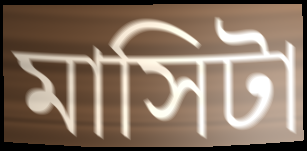
মাসিটা